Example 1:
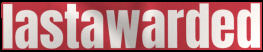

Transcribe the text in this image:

lastawarded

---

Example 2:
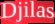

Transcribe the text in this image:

Djilas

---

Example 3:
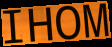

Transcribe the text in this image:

IHOM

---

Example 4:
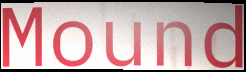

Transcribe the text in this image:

Mound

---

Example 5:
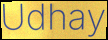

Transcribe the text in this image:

Udhay